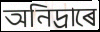
অনিদ্ৰাৰে